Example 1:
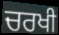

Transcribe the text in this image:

ਚਰਖੀ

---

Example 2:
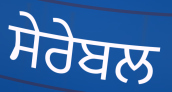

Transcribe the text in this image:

ਸੇਰੇਬਲ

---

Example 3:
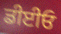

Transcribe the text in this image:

ਡੀਈਓ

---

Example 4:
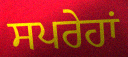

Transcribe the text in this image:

ਸਪਰੇਹਾਂ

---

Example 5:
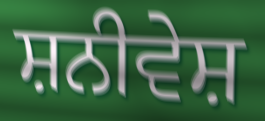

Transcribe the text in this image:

ਸ਼ਨੀਵੇਸ਼